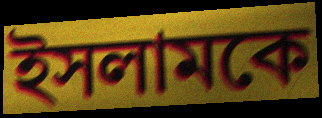
ইসলামকে